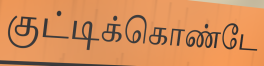
குட்டிக்கொண்டே